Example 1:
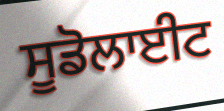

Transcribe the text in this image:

ਸੂਡੋਲਾਈਟ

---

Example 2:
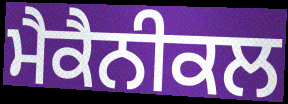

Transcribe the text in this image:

ਮੈਕੈਨੀਕਲ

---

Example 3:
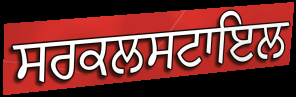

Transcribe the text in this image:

ਸਰਕਲਸਟਾਇਲ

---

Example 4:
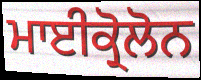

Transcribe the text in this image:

ਮਾਈਕ੍ਰੋਲੋਨ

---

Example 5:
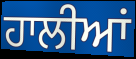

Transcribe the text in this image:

ਹਾਲੀਆਂ